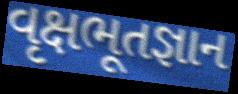
વૃક્ષભૂતજ્ઞાન